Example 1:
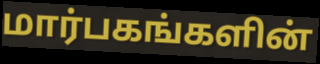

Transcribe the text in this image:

மார்பகங்களின்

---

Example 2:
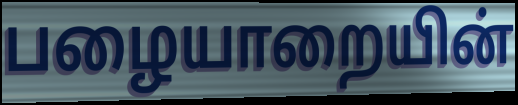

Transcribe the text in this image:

பழையாறையின்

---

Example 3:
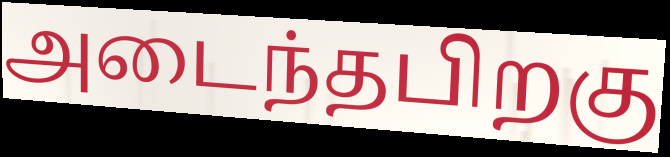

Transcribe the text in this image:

அடைந்தபிறகு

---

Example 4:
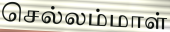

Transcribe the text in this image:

செல்லம்மாள்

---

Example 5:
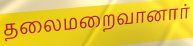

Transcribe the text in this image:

தலைமறைவானார்